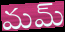
మమ్